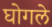
घोगले